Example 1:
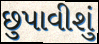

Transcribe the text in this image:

છુપાવીશું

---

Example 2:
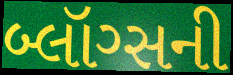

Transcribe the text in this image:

બ્લૉગ્સની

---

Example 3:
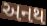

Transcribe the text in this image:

અનથ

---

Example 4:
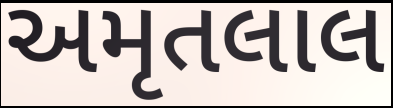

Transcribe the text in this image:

અમૃતલાલ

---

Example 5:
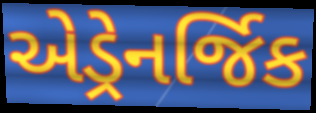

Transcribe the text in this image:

એડ્રેનર્જિક